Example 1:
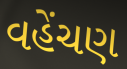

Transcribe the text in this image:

વહેંચણ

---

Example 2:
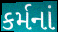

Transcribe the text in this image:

કર્મનાં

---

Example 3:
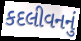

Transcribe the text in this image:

કદલીવનનું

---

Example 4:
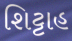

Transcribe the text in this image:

શિટ્ટાહ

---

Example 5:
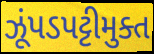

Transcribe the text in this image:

ઝૂંપડપટ્ટીમુક્ત